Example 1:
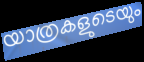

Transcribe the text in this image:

യാത്രകളുടെയും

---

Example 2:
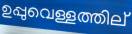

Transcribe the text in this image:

ഉപ്പുവെള്ളത്തില്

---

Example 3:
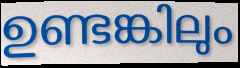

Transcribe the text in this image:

ഉണ്ടങ്കിലും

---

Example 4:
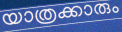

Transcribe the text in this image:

യാത്രക്കാരും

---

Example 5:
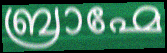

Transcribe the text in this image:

ബ്രാഹ്മേ